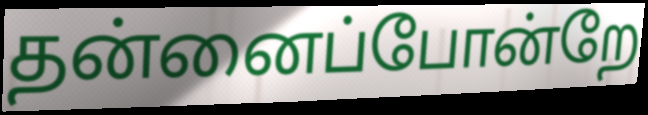
தன்னைப்போன்றே